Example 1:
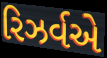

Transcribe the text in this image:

રિઝર્વએ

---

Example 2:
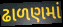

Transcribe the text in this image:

ઢાળણમાં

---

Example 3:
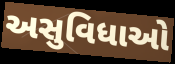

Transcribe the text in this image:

અસુવિધાઓ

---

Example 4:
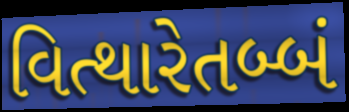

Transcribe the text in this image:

વિત્થારેતબ્બં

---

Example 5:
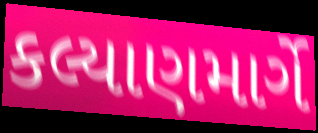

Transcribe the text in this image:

કલ્યાણમાર્ગે